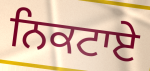
ਨਿਕਟਾਏ